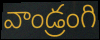
వాండ్రంగి